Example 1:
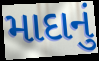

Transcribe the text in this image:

માદાનું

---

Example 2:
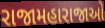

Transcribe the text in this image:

રાજામહારાજાઓ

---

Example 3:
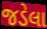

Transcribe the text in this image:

જડેલા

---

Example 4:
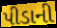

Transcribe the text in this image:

પીડાની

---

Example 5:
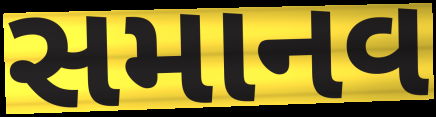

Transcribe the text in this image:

સમાનવ